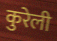
कुरेली